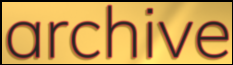
archive